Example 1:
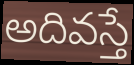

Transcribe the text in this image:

అదివస్తే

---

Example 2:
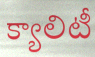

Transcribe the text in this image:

క్యాలిటీ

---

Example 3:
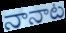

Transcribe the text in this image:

నానాట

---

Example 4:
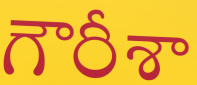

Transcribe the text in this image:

గౌరీశా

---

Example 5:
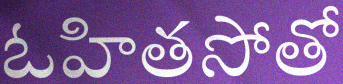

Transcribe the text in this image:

ఓహితసోతో